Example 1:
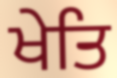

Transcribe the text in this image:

ਖੇਤਿ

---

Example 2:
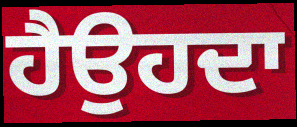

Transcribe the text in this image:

ਹੈਉਹਦਾ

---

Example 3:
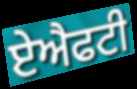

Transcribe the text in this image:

ਏਐਫਟੀ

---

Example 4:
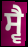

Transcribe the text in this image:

ਸ੍ਵੈ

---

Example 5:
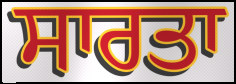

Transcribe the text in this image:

ਸਾਰਤਾ